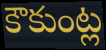
కౌకుంట్ల